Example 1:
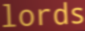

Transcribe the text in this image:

lords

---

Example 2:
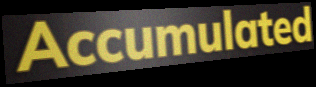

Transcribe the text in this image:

Accumulated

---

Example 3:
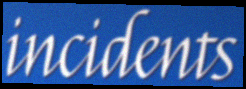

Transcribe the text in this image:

incidents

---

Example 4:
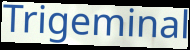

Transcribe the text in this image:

Trigeminal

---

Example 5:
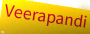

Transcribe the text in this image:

Veerapandi